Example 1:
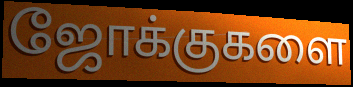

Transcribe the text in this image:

ஜோக்குகளை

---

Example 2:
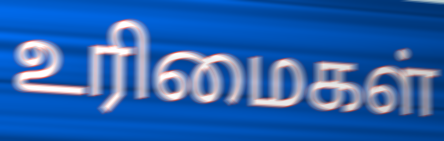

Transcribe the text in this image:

உரிமைகள்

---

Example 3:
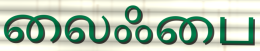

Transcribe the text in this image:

லைஃபை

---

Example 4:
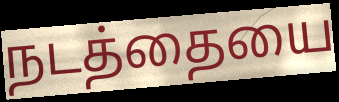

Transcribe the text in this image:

நடத்தையை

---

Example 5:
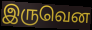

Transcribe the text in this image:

இருவென